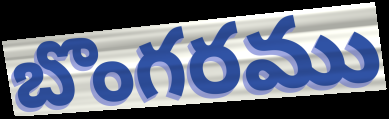
బొంగరము